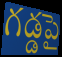
గడ్డపై